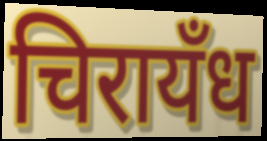
चिरायँध